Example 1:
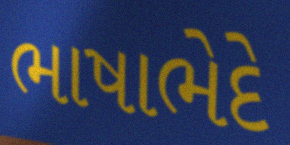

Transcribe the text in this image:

ભાષાભેદે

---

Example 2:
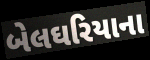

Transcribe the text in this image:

બેલઘરિયાના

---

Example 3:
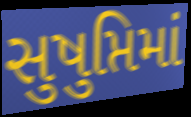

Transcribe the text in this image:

સુષુપ્તિમાં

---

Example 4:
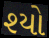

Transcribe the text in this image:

શ્યો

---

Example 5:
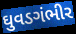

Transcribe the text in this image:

ઘુવડગંભીર